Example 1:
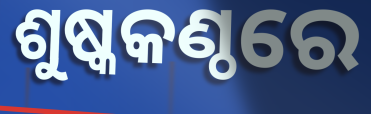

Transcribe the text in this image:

ଶୁଷ୍କକଣ୍ଠରେ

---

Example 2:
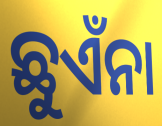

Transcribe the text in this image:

ଛୁଏଁନା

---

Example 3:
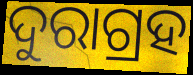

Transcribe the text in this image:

ଦୁରାଗ୍ରହ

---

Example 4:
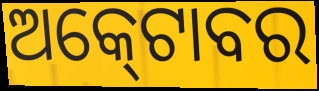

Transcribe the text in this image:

ଅକ୍‍ଟୋବର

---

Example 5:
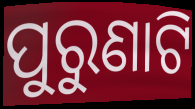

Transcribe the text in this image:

ପୁରୁଣାଟି